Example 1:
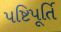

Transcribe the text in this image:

પષ્ટિપૂર્તિ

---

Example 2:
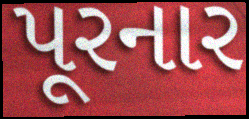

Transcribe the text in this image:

પૂરનાર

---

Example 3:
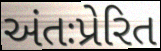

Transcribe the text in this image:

અંતઃપ્રેરિત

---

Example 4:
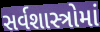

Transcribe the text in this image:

સર્વશાસ્ત્રોમાં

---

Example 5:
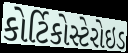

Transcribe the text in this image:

કોર્ટિકોસ્ટેરોઇડ